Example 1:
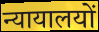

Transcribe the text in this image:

न्यायालयों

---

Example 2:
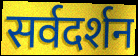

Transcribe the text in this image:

सर्वदर्शन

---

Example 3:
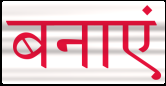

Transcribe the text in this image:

बनाएं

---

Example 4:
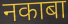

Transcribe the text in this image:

नकाबा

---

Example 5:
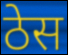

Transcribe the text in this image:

ठेस